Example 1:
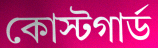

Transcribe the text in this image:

কোস্টগার্ড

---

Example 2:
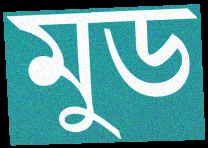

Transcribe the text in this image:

মুড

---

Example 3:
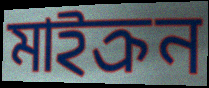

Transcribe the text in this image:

মাইক্রন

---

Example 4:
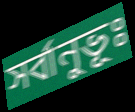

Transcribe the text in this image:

সর্বানুভূঃ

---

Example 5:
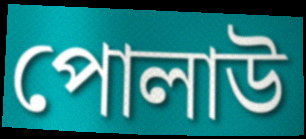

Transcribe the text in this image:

পোলাউ